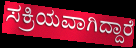
ಸಕ್ರಿಯವಾಗಿದ್ದಾರೆ